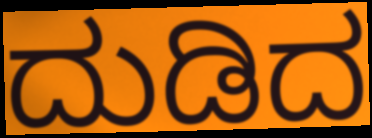
ದುಡಿದ